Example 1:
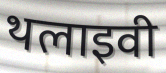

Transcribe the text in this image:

थलाइवी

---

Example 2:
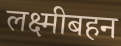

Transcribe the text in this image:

लक्ष्मीबहन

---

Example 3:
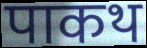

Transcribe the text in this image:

पाकथ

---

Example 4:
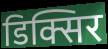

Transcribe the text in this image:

डिक्सिर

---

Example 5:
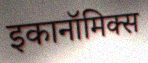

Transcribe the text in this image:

इकानॉमिक्स